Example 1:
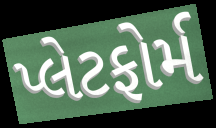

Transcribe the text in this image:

પ્લેટફોર્મ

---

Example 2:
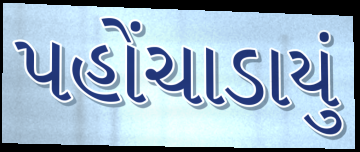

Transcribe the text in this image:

પહોંચાડાયું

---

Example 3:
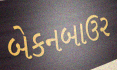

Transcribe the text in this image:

બેકનબાઉર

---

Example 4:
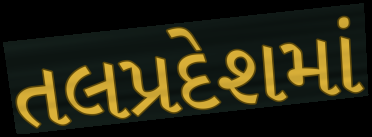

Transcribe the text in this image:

તલપ્રદેશમાં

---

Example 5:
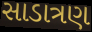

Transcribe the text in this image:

સાડાત્રણ